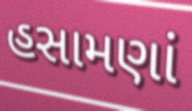
હસામણાં